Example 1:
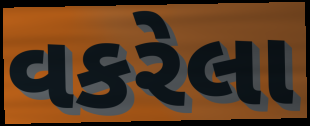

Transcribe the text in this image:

વકરેલા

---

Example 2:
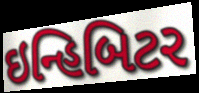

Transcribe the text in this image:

ઇન્હિબિટર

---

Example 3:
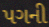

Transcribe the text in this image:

પગની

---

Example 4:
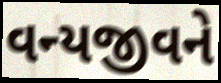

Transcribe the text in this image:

વન્યજીવને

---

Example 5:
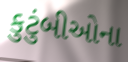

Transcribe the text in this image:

કુટુંબીઓના